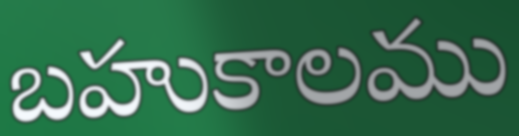
బహుకాలము